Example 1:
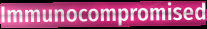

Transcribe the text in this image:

Immunocompromised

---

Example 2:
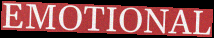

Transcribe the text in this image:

EMOTIONAL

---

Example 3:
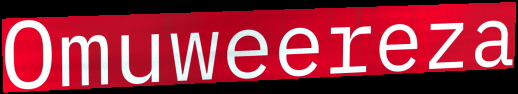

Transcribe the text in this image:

Omuweereza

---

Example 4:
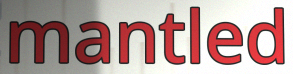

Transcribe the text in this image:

mantled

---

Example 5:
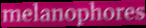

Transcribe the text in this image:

melanophores